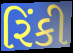
રિંકી